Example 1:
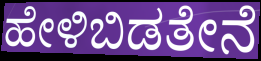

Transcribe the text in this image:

ಹೇಳಿಬಿಡತೇನೆ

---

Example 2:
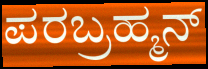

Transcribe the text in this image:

ಪರಬ್ರಹ್ಮನ್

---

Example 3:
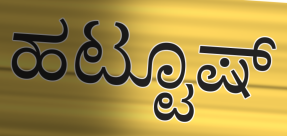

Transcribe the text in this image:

ಹಟ್ಟೂಷ್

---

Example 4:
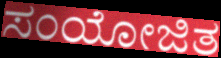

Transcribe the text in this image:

ಸಂಯೋಜಿತ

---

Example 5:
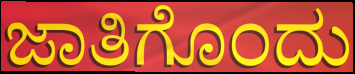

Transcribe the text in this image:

ಜಾತಿಗೊಂದು